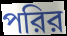
পরির